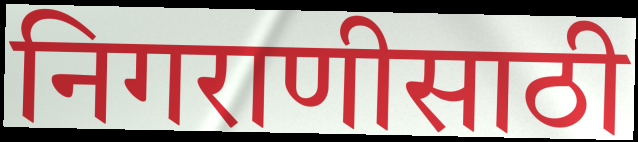
निगराणीसाठी